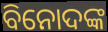
ବିନୋଦଙ୍କ